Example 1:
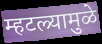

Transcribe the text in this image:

म्हटल्यामुळे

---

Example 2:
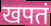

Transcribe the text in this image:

खपतं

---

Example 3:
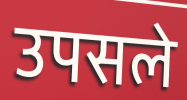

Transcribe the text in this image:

उपसले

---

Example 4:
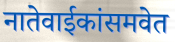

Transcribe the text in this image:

नातेवाईकांसमवेत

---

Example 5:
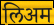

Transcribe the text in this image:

लिअम